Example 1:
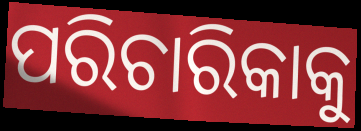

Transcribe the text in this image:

ପରିଚାରିକାକୁ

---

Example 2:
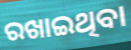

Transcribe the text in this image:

ରଖାଇଥିବା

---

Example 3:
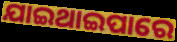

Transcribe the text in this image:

ଯାଇଥାଇପାରେ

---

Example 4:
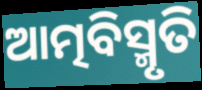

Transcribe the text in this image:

ଆତ୍ମବିସ୍ମୃତି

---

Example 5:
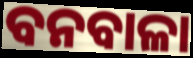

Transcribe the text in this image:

ବନବାଳା